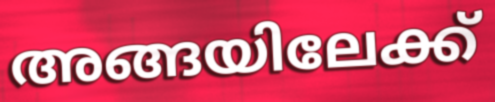
അങ്ങയിലേക്ക്